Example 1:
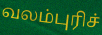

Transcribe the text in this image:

வலம்புரிச்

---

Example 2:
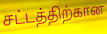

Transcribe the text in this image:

சட்டத்திற்கான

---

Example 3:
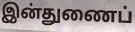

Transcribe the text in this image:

இன்துணைப்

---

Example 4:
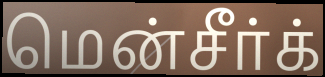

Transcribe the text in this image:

மென்சீர்க்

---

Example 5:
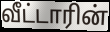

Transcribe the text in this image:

வீட்டாரின்